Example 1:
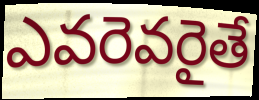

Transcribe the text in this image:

ఎవరెవరైతే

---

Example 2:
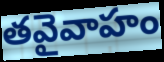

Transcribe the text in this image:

తవైవాహం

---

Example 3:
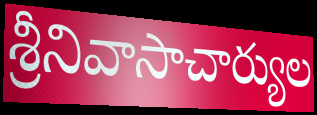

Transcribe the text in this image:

శ్రీనివాసాచార్యుల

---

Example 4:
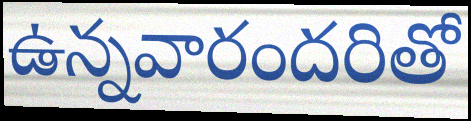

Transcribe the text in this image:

ఉన్నవారందరితో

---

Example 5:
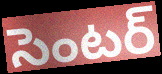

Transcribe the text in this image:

సెంటర్